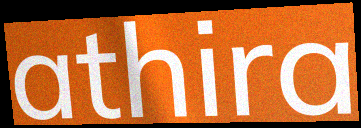
athira